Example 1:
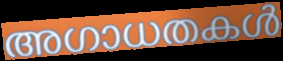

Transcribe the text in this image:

അഗാധതകൾ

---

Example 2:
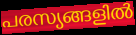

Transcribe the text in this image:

പരസ്യങ്ങളിൽ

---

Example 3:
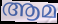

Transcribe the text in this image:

ആമ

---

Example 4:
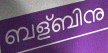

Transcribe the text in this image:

ബള്ബിനു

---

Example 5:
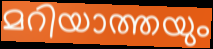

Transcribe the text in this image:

മറിയാത്തയും